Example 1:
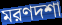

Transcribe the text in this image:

মরণদশা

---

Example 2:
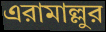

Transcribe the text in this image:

এরামাল্লুর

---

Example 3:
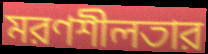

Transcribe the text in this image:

মরণশীলতার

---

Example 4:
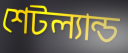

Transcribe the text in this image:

শেটল্যান্ড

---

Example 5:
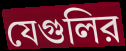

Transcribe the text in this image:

যেগুলির